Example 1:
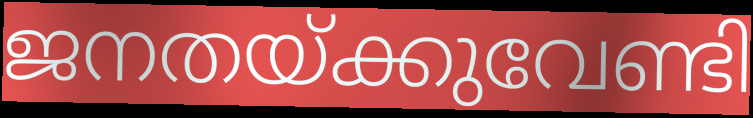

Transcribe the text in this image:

ജനതയ്ക്കുവേണ്ടി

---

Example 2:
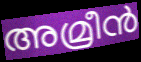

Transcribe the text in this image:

അമ്രീൻ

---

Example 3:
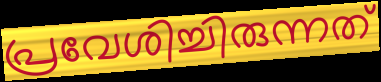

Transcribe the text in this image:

പ്രവേശിച്ചിരുന്നത്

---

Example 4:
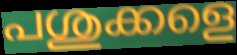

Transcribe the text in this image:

പശുക്കളെ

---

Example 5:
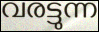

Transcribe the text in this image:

വരട്ടുന്ന